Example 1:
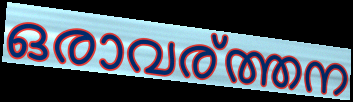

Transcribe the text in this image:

ഒരാവര്ത്തന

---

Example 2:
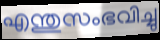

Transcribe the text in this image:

എന്തുസംഭവിച്ചു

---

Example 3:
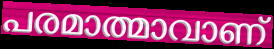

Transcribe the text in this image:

പരമാത്മാവാണ്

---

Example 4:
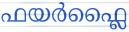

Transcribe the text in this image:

ഫയർഫ്ലൈ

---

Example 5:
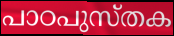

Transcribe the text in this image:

പാഠപുസ്തക